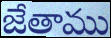
జేతాము